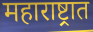
महाराष्ट्रात